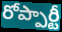
రోప్పార్టీ